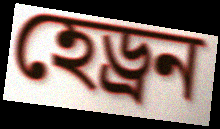
হেড্ৰন